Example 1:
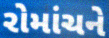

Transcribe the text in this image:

રોમાંચને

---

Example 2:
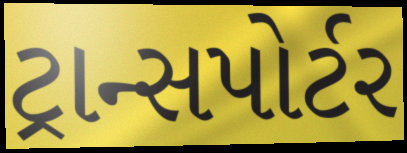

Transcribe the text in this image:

ટ્રાન્સપોર્ટર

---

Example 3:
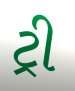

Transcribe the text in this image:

ટ્રી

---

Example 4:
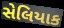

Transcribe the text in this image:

સેલિયાક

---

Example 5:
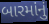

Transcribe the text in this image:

બારમાંનું